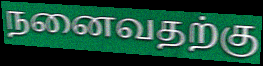
நனைவதற்கு